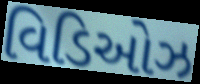
વિડિઓઝ